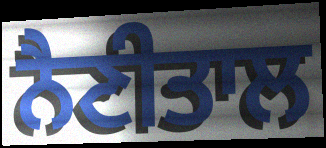
ਨੈਣੀਤਾਲ